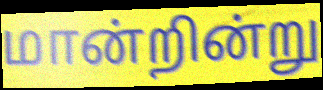
மான்றின்று